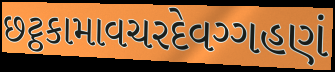
છટ્ઠકામાવચરદેવગ્ગહણં